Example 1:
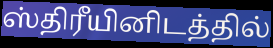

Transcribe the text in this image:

ஸ்திரீயினிடத்தில்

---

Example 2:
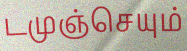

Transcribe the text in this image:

டமுஞ்செயும்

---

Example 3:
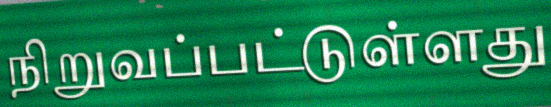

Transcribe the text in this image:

நிறுவப்பட்டுள்ளது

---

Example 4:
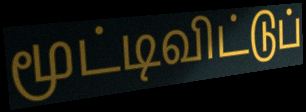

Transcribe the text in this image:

மூட்டிவிட்டுப்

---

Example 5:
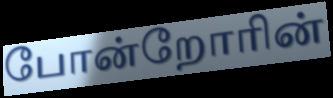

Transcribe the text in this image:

போன்றோரின்